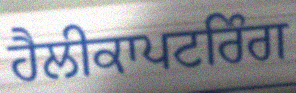
ਹੈਲੀਕਾਪਟਰਿੰਗ